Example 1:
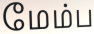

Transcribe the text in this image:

மேம்ப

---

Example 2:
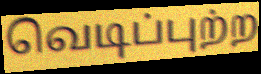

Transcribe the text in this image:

வெடிப்புற்ற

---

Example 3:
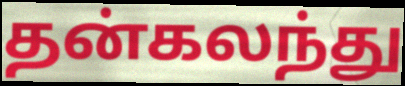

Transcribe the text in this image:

தன்கலந்து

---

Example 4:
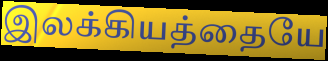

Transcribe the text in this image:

இலக்கியத்தையே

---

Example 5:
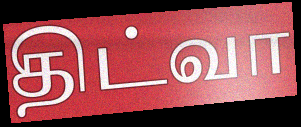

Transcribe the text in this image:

திட்வா